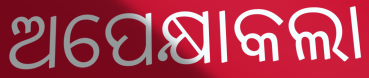
ଅପେକ୍ଷାକଲା